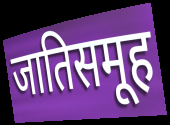
जातिसमूह